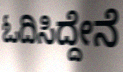
ಓದಿಸಿದ್ದೇನೆ